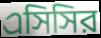
এসিসির